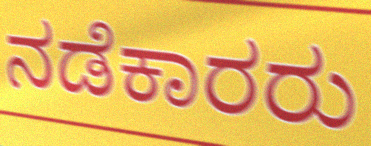
ನಡೆಕಾರರು